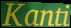
Kanti